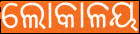
ଲୋକାଳୟ